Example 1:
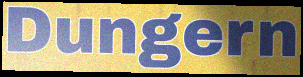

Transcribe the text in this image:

Dungern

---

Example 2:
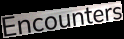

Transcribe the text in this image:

Encounters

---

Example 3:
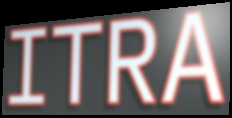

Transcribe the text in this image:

ITRA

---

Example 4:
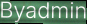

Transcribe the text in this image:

Byadmin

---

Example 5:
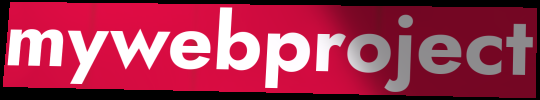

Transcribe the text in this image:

mywebproject